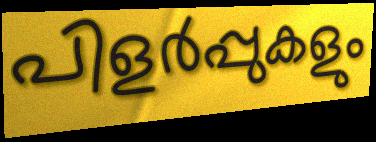
പിളർപ്പുകളും